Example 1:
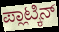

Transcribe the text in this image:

ಪ್ಲಾಟ್ಕಿನ್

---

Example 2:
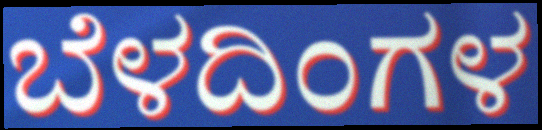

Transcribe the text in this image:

ಬೆಳದಿಂಗಳ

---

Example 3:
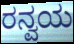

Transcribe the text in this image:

ರನ್ವಯ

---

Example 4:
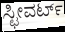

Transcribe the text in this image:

ಸ್ಟೀವರ್ಟ್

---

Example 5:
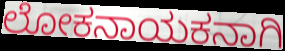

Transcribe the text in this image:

ಲೋಕನಾಯಕನಾಗಿ